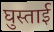
घुस्ताई